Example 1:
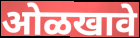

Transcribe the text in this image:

ओळखावे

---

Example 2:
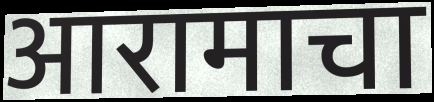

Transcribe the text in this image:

आरामाचा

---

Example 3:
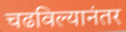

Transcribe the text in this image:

चढविल्यानंतर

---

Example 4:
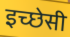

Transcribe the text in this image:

इच्छेसी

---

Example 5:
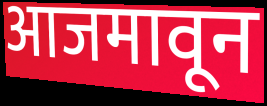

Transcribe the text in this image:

आजमावून